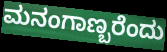
ಮನಂಗಾಣ್ಬರೆಂದು